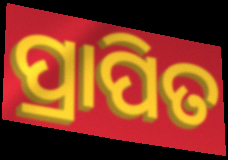
ପ୍ରାପିତ